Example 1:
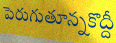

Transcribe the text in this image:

పెరుగుతూన్నకొద్దీ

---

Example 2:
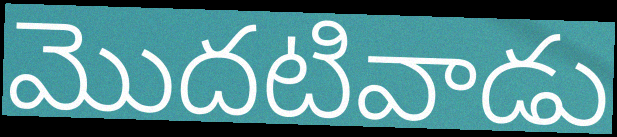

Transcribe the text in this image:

మొదటివాడు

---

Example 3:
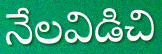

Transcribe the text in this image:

నేలవిడిచి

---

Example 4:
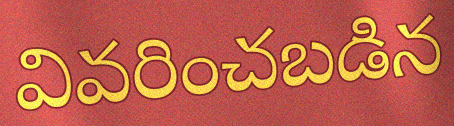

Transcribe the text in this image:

వివరించబడిన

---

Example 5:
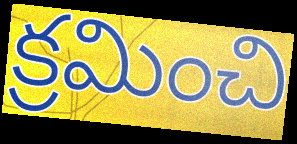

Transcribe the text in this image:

క్రమించి